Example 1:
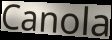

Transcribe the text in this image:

Canola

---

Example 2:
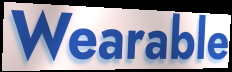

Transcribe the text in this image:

Wearable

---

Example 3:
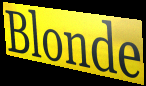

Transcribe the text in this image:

Blonde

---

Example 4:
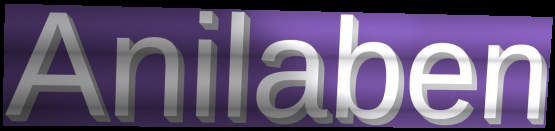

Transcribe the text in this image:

Anilaben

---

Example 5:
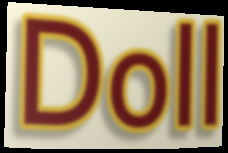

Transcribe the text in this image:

Doll